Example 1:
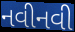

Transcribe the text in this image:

નવીનવી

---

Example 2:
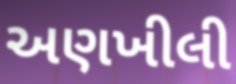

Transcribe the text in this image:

અણખીલી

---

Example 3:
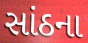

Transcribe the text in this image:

સાંઠના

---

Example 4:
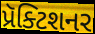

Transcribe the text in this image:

પ્રૅક્ટિશનર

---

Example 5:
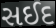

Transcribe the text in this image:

સઈદ